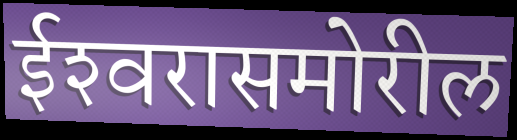
ईश्वरासमोरील